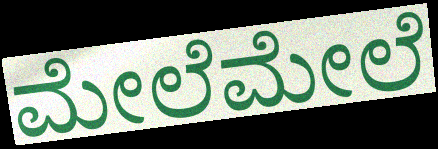
ಮೇಲೆಮೇಲೆ